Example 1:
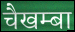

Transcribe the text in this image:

चैखम्बा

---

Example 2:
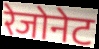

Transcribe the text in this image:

रेजोनेट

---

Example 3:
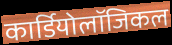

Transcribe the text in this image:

कार्डियोलॉजिकल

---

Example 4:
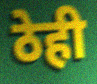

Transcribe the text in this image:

ठेही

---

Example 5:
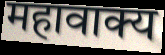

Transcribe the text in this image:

महावाक्य